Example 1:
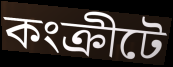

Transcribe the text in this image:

কংক্রীটে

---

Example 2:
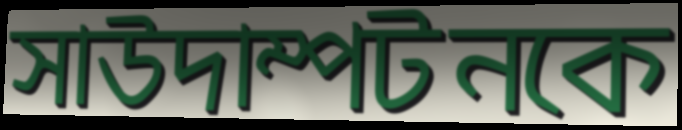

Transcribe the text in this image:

সাউদাম্পটনকে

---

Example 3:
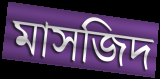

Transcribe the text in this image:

মাসজিদ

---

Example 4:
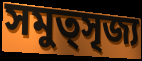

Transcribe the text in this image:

সমুত্সৃজ্য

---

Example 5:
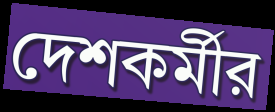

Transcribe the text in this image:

দেশকর্মীর